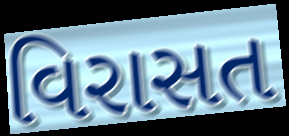
વિરાસત